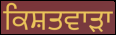
ਕਿਸ਼ਤਵਾੜਾ